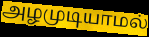
அழமுடியாமல்